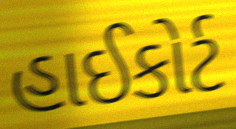
હાઈકોર્ટ